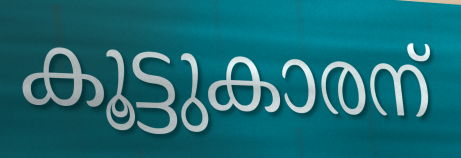
കൂട്ടുകാരന്